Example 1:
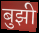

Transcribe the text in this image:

बुझी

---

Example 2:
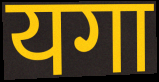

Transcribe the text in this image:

यगा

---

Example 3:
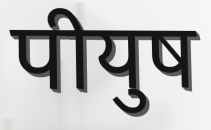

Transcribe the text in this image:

पीयुष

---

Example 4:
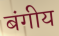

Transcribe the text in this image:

बंगीय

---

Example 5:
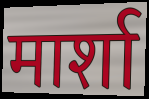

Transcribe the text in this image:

मार्शा